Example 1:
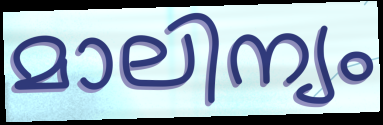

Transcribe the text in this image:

മാലിന്യം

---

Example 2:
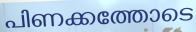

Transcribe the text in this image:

പിണക്കത്തോടെ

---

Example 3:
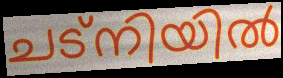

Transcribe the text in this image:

ചട്നിയിൽ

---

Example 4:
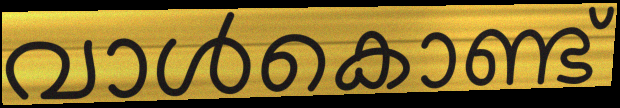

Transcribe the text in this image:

വാൾകൊണ്ട്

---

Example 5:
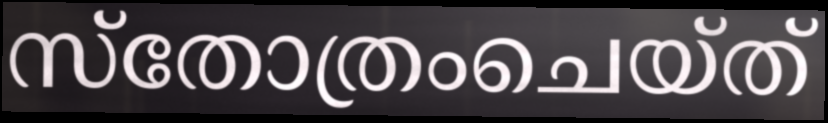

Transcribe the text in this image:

സ്തോത്രംചെയ്ത്